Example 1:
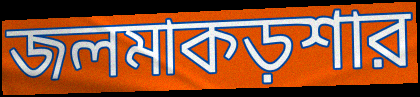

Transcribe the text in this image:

জলমাকড়শার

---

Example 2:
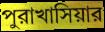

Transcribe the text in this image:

পুরাখাসিয়ার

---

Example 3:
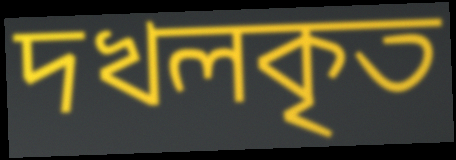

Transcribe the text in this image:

দখলকৃত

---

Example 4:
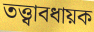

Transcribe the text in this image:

তত্ত্বাবধায়ক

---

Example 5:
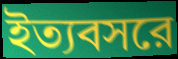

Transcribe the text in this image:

ইত্যবসরে